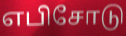
எபிசோடு